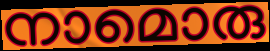
നാമൊരു